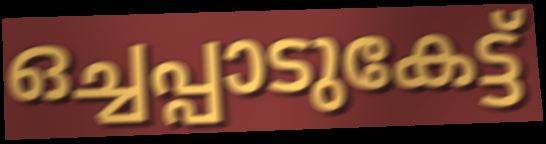
ഒച്ചപ്പാടുകേട്ട്